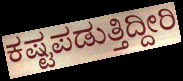
ಕಷ್ಟಪಡುತ್ತಿದ್ದೀರಿ